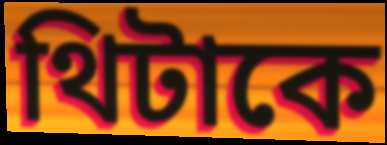
থিটাকে